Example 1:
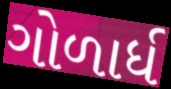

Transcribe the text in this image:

ગોળાર્ધ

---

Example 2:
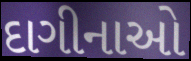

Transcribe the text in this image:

દાગીનાઓ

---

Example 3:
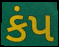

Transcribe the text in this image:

કંપ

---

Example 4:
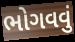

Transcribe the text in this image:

ભોગવવું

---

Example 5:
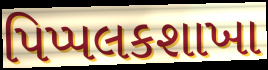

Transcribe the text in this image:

પિપ્પલકશાખા